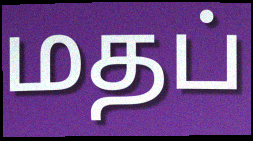
மதப்